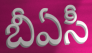
బీఏసీ